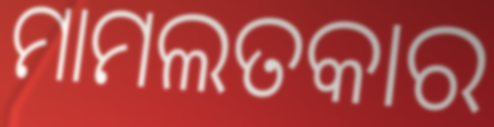
ମାମଲତକାର